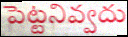
పెట్టనివ్వదు